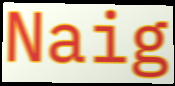
Naig